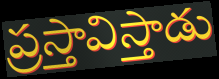
ప్రస్తావిస్తాడు